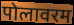
पोलावरम